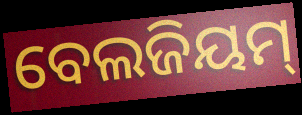
ବେଲଜିୟମ୍